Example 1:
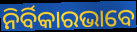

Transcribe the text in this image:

ନିର୍ବିକାରଭାବେ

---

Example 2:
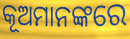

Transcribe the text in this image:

କୂଅମାନଙ୍କରେ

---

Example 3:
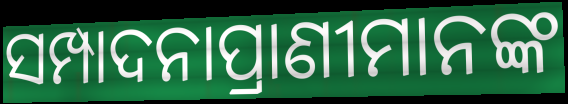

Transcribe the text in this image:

ସମ୍ପାଦନାପ୍ରାଣୀମାନଙ୍କ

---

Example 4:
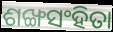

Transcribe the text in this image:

ଶଙ୍ଖସଂହିତା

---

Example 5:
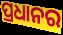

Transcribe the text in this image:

ପ୍ରଧାନର